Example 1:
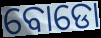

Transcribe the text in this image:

ବୋଡୋ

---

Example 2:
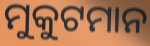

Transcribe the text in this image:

ମୁକୁଟମାନ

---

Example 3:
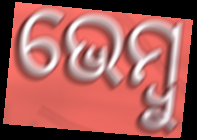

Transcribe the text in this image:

ଭେମ୍ବୁ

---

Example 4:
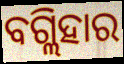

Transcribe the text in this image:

ବଗ୍ଲିହାର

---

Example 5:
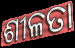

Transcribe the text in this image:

ଶୀଳତା